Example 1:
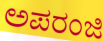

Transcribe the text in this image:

ಅಪರಂಜಿ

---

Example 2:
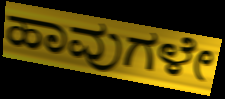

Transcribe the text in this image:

ಹಾವುಗಳೇ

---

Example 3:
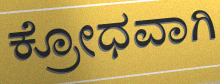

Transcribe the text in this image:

ಕ್ರೋಧವಾಗಿ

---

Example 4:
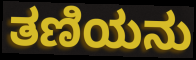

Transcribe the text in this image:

ತಣಿಯನು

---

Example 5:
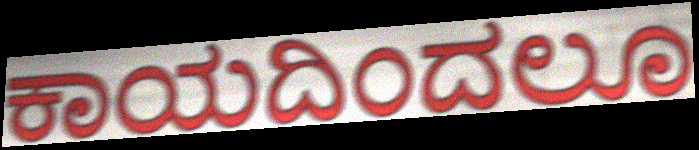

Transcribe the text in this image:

ಕಾಯದಿಂದಲೂ